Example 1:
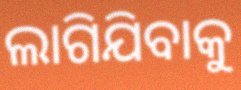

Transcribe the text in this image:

ଲାଗିଯିବାକୁ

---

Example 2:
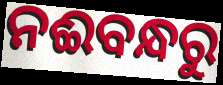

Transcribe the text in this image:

ନଈବନ୍ଧରୁ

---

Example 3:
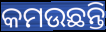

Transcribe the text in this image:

କମଉଛନ୍ତି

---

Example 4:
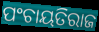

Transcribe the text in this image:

ପଂଚାୟତିରାଜ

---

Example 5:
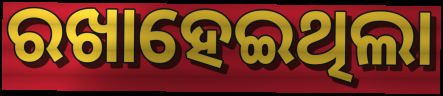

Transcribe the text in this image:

ରଖାହେଇଥିଲା